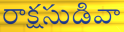
రాక్షసుడివా